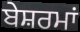
ਬੇਸ਼ਰਮਾਂ